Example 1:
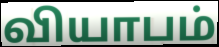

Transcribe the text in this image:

வியாபம்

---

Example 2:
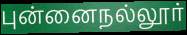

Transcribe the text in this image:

புன்னைநல்லூர்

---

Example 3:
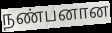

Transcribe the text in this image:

நண்பனான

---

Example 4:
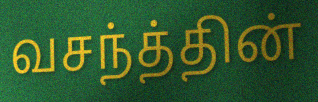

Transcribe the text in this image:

வசந்த்தின்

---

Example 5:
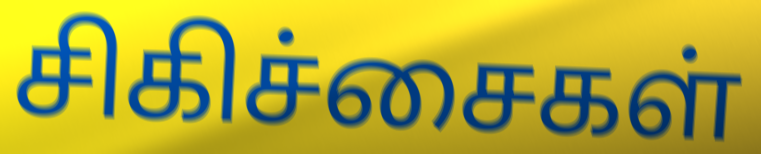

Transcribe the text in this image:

சிகிச்சைகள்